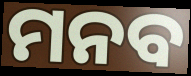
ମନବ